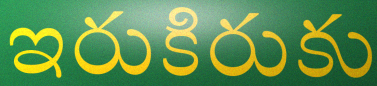
ఇరుకిరుకు